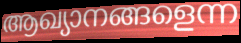
ആഖ്യാനങ്ങളെന്ന